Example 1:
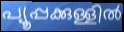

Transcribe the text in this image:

പ്യൂപ്പക്കുള്ളിൽ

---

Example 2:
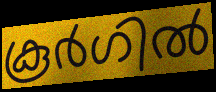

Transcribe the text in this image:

കൂർഗിൽ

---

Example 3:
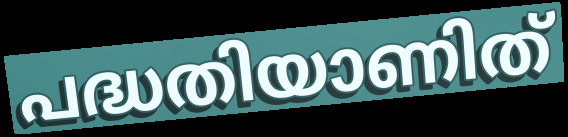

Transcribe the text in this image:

പദ്ധതിയാണിത്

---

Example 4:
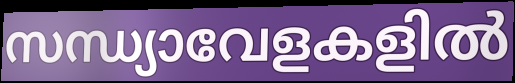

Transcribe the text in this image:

സന്ധ്യാവേളകളിൽ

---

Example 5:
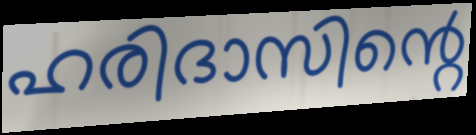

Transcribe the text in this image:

ഹരിദാസിന്റെ